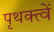
पृथक्त्वें